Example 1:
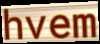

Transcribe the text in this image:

hvem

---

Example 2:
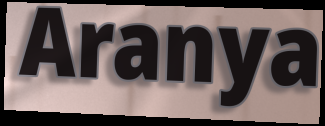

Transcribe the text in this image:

Aranya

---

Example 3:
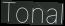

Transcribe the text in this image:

Tonal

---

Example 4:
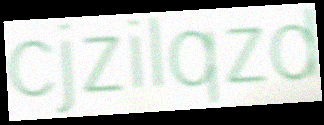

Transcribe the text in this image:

cjzilqzd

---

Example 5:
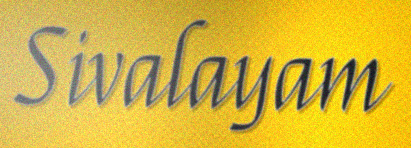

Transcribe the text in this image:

Sivalayam